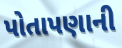
પોતાપણાની